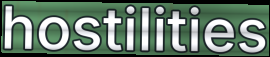
hostilities